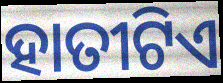
ହାତୀଟିଏ